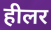
हीलर